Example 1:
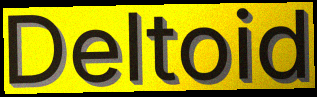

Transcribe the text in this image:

Deltoid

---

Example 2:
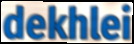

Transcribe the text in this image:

dekhlei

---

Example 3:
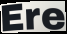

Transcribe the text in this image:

Ere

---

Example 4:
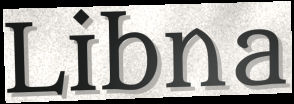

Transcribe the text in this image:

Libna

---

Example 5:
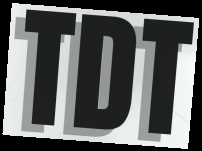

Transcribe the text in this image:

TDT